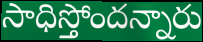
సాధిస్తోందన్నారు